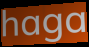
haga